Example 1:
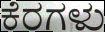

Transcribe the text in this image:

ಕೆರಗಳು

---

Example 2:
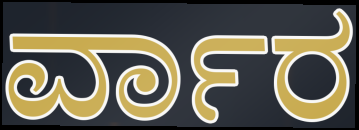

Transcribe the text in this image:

ರ್ವಾರ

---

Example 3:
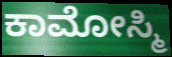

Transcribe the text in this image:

ಕಾಮೋಸ್ಮಿ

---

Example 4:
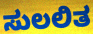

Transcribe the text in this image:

ಸುಲಲಿತ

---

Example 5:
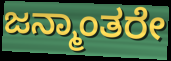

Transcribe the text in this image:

ಜನ್ಮಾಂತರೇ